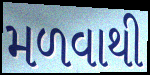
મળવાથી